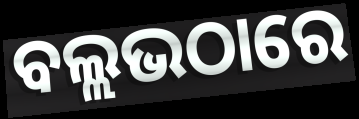
ବଲ୍ଲଭଠାରେ